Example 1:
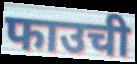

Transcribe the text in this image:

फाउची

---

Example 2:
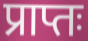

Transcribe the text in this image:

प्राप्तः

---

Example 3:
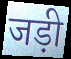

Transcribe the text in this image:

जड़ी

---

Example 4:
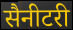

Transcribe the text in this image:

सैनीटरी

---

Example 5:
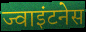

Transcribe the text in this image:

ज्वाइंटनेस